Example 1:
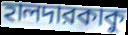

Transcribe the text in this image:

হালদারকাকু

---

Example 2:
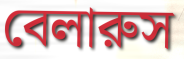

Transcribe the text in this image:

বেলারুস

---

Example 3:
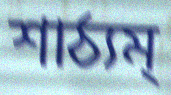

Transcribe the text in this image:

শাঠ্যম্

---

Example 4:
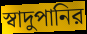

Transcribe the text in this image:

স্বাদুপানির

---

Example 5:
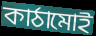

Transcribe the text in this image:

কাঠামোই